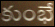
కుంభే